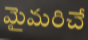
మైమరిచే